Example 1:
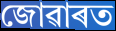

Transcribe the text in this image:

জোৱাৰত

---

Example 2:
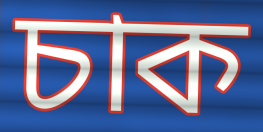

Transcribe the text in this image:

চাক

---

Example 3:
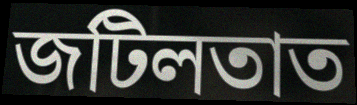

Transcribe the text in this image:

জটিলতাত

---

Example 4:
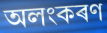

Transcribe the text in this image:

অলংকৰণ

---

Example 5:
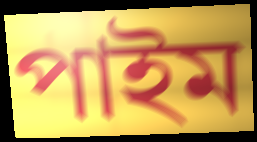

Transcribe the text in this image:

পাইম